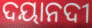
ଦୟାନଦୀ